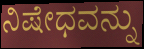
ನಿಷೇಧವನ್ನು